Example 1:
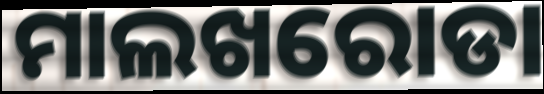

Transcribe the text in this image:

ମାଲଖରୋଡା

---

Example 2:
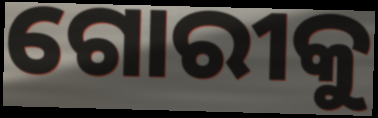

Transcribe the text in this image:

ଗୋରୀକୁ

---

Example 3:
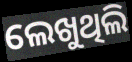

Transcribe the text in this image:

ଲେଖୁଥିଲି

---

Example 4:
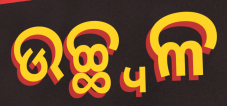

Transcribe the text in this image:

ଉଚ୍ଛ୍ଵଳ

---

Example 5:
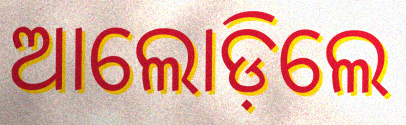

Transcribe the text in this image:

ଆଲୋଡ଼ିଲେ